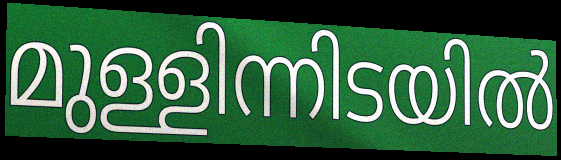
മുള്ളിന്നിടയിൽ